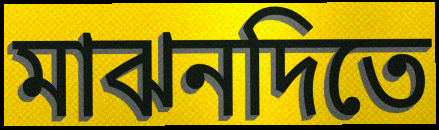
মাঝনদিতে